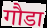
गौडा